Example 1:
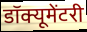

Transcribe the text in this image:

डॉक्यूमेंटरी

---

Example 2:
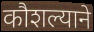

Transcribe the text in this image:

कौशल्याने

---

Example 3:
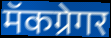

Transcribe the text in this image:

मॅकग्रेगर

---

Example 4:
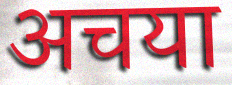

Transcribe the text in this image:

अचया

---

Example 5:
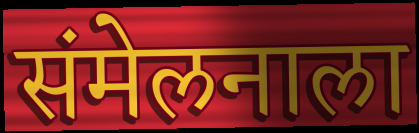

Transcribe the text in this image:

संमेलनाला